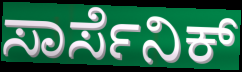
ಸಾರ್ಸೆನಿಕ್